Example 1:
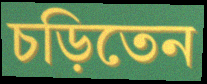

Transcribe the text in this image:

চড়িতেন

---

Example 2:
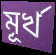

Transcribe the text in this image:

মূর্খ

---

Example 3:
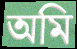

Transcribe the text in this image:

অমি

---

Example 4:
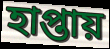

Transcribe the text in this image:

হাপ্তায়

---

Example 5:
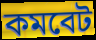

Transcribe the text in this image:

কমবেট